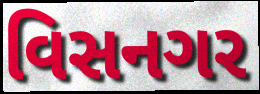
વિસનગર